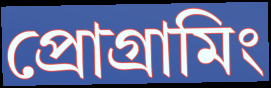
প্ৰোগ্ৰামিং